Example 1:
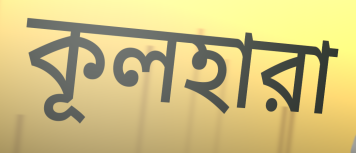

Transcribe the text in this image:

কূলহারা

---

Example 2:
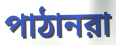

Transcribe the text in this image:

পাঠানরা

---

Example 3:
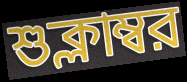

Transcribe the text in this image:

শুক্লাম্বর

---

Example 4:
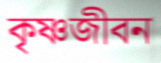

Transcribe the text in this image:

কৃষ্ণজীবন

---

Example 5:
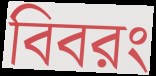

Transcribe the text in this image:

বিবরং